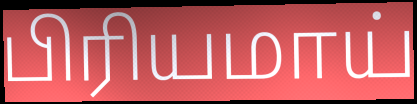
பிரியமாய்